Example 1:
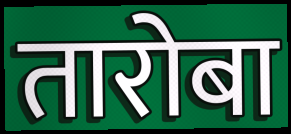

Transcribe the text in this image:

तारोबा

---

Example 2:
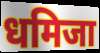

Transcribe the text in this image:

धमिजा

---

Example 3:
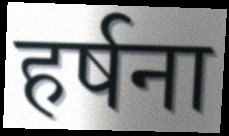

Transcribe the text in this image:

हर्षना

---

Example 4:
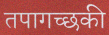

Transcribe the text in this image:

तपागच्छकी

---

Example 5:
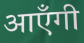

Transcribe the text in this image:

आएँगी